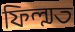
ফিল্মত